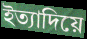
ইত্যাদিয়ে